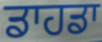
ਡਾਹਡਾ